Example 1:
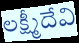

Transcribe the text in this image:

లక్ష్మీదేవి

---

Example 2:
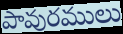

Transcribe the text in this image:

పావురములు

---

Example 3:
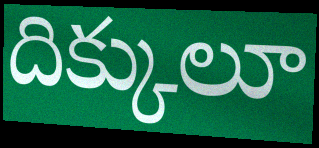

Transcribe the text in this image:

దిక్కులూ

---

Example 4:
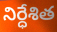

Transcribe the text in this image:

నిర్ధేశిత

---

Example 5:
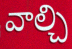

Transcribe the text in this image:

వాల్చి